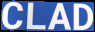
CLAD